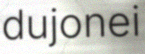
dujonei